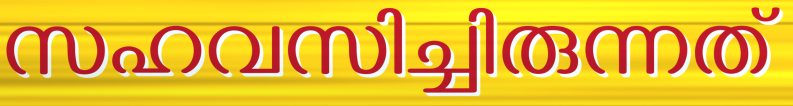
സഹവസിച്ചിരുന്നത്